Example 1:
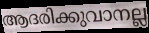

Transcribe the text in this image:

ആദരിക്കുവാനല്ല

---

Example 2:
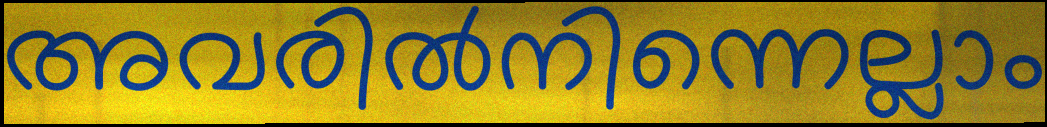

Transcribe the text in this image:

അവരിൽനിന്നെല്ലാം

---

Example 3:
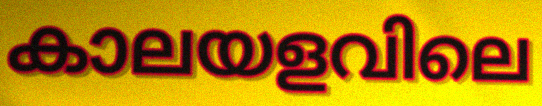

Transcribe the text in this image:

കാലയളവിലെ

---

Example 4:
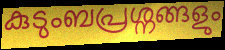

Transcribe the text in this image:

കുടുംബപ്രശ്നങ്ങളും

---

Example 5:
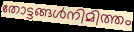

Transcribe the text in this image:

തോട്ടങ്ങൾനിമിത്തം